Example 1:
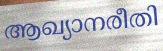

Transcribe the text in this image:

ആഖ്യാനരീതി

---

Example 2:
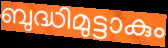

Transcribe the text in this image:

ബുദ്ധിമുട്ടാകും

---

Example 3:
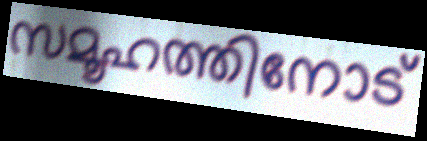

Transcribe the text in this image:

സമൂഹത്തിനോട്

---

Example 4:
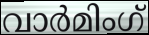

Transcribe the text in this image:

വാർമിംഗ്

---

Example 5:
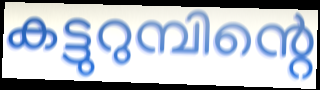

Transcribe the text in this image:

കട്ടുറുമ്പിന്റെ